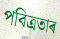
পবিত্ৰতাৰ